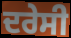
ਦਰੇਸੀ